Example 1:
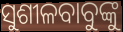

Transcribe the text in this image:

ସୁଶୀଳବାବୁଙ୍କୁ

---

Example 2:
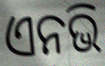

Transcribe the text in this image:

ଏନଭି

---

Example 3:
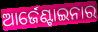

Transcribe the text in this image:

ଆର୍ଜେଣ୍ଟାଇନାର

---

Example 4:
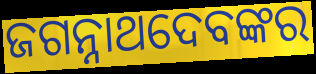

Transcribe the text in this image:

ଜଗନ୍ନାଥଦେବଙ୍କର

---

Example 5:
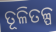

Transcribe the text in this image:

ତୂଳିତଳ୍ପ